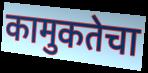
कामुकतेचा